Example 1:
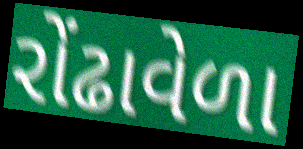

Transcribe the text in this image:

રોંઢાવેળા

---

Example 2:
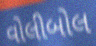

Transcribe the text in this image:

વોલીબોલ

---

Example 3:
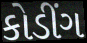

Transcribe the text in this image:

કોડીંગ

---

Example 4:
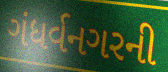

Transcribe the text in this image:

ગંધર્વનગરની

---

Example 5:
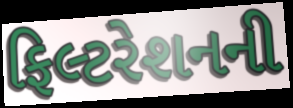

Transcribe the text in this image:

ફિલ્ટરેશનની